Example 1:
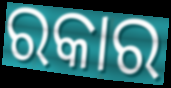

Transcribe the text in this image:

ରକାର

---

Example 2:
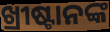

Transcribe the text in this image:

ଖ୍ରୀଷ୍ଟାନଙ୍କ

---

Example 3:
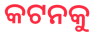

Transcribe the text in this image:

କଟନକୁ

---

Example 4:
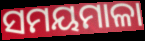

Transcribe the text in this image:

ସମୟମାଳା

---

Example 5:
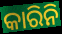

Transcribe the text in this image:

କାରିନି